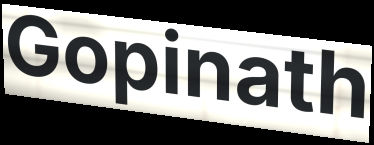
Gopinath